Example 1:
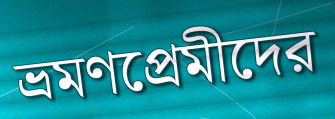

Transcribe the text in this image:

ভ্রমণপ্রেমীদের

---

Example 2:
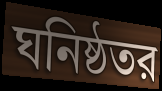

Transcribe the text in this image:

ঘনিষ্ঠতর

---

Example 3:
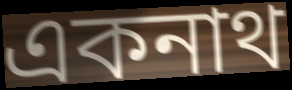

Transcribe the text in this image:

একনাথ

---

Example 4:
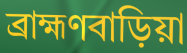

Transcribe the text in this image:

ব্রাহ্মণবাড়িয়া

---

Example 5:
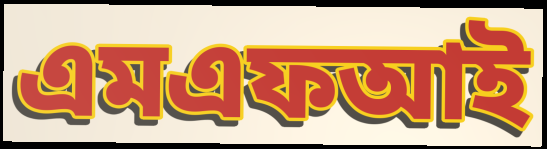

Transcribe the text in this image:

এমএফআই